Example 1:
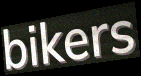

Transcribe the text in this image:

bikers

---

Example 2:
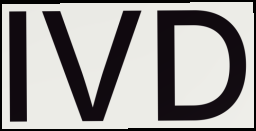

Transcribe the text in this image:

IVD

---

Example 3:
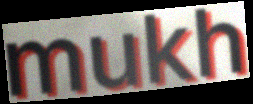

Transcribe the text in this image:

mukh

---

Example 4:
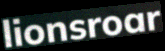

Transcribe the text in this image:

lionsroar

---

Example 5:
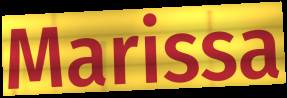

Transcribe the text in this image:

Marissa